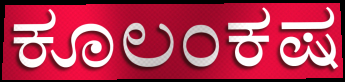
ಕೂಲಂಕಷ